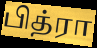
பித்ரா